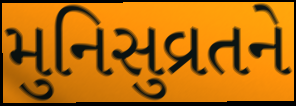
મુનિસુવ્રતને